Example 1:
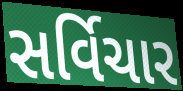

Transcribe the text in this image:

સર્વિચાર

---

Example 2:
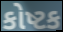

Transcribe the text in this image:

કોષ્ટક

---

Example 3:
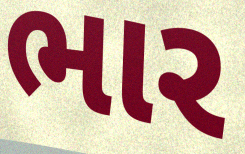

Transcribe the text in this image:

ભાર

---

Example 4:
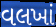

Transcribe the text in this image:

વલખાં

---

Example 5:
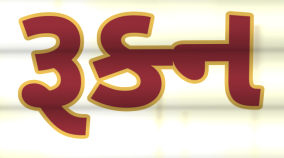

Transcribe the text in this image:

રૂક્ન